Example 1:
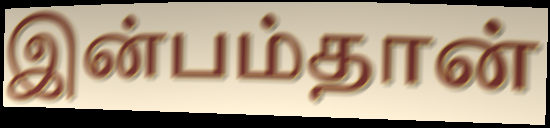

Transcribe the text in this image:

இன்பம்தான்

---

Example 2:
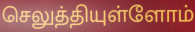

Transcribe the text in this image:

செலுத்தியுள்ளோம்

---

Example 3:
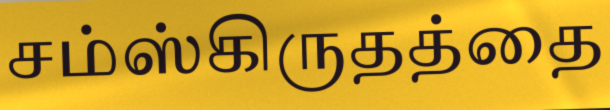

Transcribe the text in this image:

சம்ஸ்கிருதத்தை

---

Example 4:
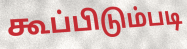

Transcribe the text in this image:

கூப்பிடும்படி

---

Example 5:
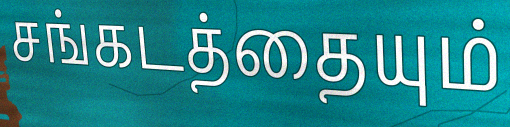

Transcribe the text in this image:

சங்கடத்தையும்